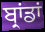
ਬ੍ਰਾਂਡਾਂ